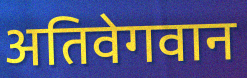
अतिवेगवान